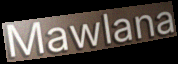
Mawlana